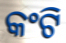
କଂଟି